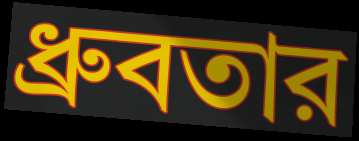
ধ্রুবতার